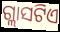
ଗ୍ଲାସଟିଏ